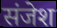
संजेश